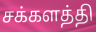
சக்களத்தி